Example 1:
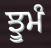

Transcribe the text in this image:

ਝੂਮੰ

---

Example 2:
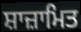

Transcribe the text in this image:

ਸ਼ਾਜ਼ਾਮਿਤ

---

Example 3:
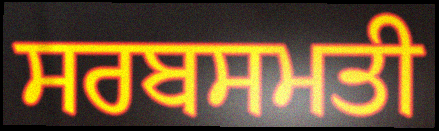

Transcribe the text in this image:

ਸਰਬਸਮਤੀ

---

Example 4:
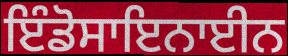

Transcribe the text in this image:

ਇੰਡੋਸਾਇਨਾਈਨ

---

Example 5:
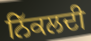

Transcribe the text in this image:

ਨਿੱਕਲਦੀ